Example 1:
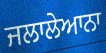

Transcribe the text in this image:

ਜਲਾਲੇਆਨਾ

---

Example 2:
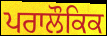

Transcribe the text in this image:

ਪਰਾਲੌਕਿਕ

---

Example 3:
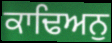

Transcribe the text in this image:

ਕਾਢਿਅਨੁ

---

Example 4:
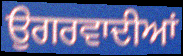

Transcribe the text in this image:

ਉਗਰਵਾਦੀਆਂ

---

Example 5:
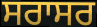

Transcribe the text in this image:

ਸਰਾਸਰ